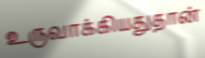
உருவாக்கியதுதான்